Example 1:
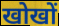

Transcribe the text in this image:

खोखों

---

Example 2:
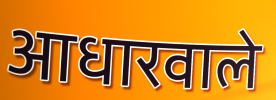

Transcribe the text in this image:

आधारवाले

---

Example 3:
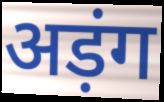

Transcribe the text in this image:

अड़ंग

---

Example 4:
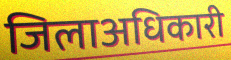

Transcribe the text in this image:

जिलाअधिकारी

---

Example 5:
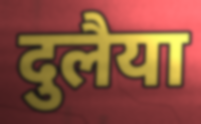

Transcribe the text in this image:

दुलैया